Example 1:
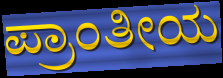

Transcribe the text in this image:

ಪ್ರಾಂತೀಯ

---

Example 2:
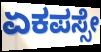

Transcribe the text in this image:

ಏಕಪಸ್ಸೇ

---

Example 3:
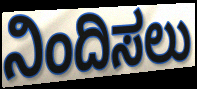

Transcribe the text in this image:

ನಿಂದಿಸಲು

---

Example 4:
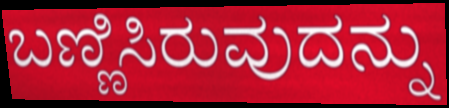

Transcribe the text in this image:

ಬಣ್ಣಿಸಿರುವುದನ್ನು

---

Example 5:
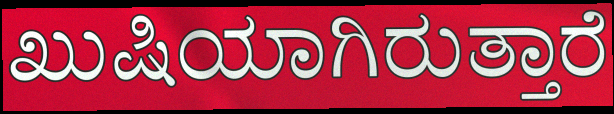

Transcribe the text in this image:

ಖುಷಿಯಾಗಿರುತ್ತಾರೆ